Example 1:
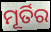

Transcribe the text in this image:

ମୂର୍ତିର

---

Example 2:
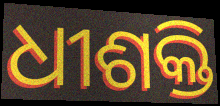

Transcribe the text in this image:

ଧୀଶକ୍ତି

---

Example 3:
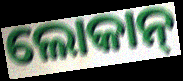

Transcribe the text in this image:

ଲୋକାନ୍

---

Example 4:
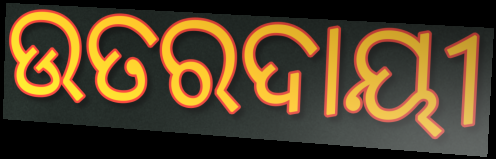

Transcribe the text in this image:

ଉତରଦାୟୀ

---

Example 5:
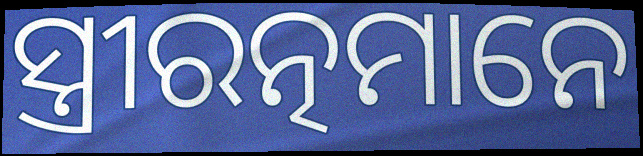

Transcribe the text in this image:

ସ୍ତ୍ରୀରତ୍ନମାନେ